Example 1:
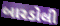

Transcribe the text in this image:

બારડોલી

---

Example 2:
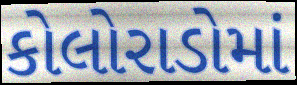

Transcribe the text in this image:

કોલોરાડોમાં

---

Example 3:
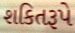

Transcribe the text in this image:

શકિતરૂપે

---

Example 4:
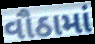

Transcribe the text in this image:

વૌઠામાં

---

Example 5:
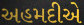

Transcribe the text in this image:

અહમદીએ